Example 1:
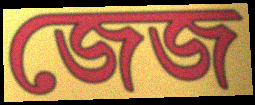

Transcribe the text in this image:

জেজ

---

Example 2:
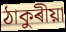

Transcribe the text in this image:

ঠাকুৰীয়া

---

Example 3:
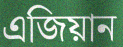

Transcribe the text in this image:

এজিয়ান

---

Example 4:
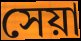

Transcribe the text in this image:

সেয়া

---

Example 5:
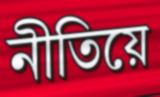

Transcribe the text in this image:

নীতিয়ে